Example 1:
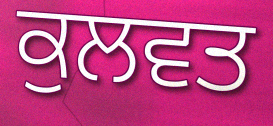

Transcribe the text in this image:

ਕੁਲਵਤ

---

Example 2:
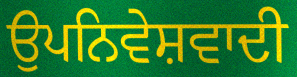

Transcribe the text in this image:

ਉਪਨਿਵੇਸ਼ਵਾਦੀ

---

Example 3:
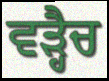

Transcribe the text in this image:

ਵੜ੍ਹੈਚ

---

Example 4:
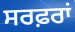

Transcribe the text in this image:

ਸਰਫ਼ਰਾਂ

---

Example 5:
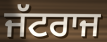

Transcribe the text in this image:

ਜੱਟਰਾਜ